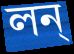
লন্